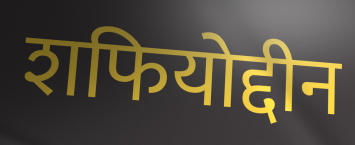
शफियोद्दीन